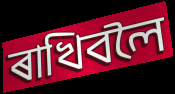
ৰাখিবলৈ